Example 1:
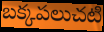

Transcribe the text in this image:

బక్కపలుచటి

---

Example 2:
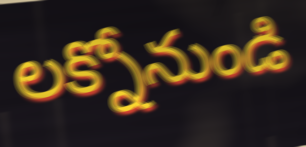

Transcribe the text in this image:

లక్నోనుండి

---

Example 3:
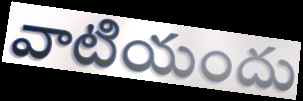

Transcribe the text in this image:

వాటియందు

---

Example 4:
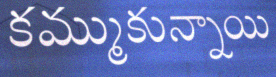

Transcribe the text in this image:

కమ్ముకున్నాయి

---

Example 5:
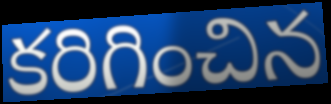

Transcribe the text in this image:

కరిగించిన